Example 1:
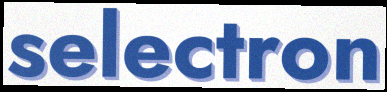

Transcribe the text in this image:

selectron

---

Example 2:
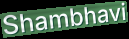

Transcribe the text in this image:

Shambhavi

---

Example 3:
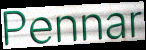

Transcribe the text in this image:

Pennar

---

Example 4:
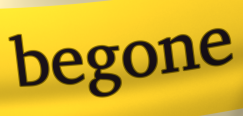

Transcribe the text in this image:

begone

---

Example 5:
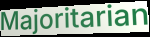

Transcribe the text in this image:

Majoritarian